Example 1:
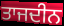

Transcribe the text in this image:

ਤਾਜਦੀਨ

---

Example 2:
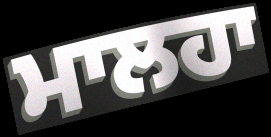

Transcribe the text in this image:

ਮਾਲਹਾ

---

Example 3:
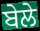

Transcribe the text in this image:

ਬੇਲੇ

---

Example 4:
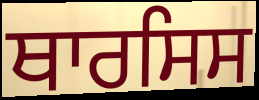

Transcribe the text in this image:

ਥਾਰਸਿਸ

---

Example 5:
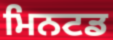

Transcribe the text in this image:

ਮਿਨਟਡ